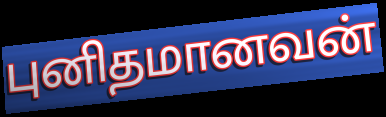
புனிதமானவன்